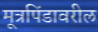
मूत्रपिंडावरील